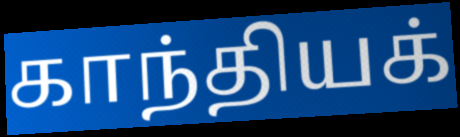
காந்தியக்